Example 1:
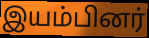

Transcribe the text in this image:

இயம்பினர்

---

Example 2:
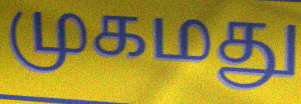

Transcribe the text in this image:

முகமது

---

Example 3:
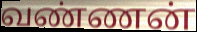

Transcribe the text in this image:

வண்ணன்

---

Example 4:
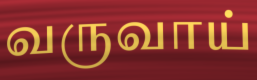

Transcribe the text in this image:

வருவாய்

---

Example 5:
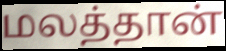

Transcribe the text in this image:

மலத்தான்